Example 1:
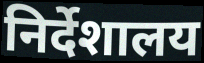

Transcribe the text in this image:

निर्देशालय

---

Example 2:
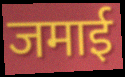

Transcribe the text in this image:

जमाई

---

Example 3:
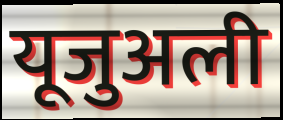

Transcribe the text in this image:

यूजुअली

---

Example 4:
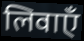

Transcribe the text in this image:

लिवाएँ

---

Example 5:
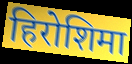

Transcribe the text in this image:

हिरोशिमा